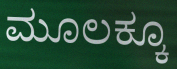
ಮೂಲಕ್ಕೂ